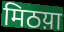
मिठय़ा